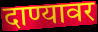
दाण्यावर